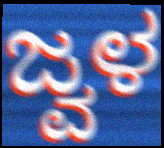
ಜ್ವಳ